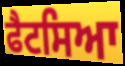
ਫੈਟਸਿਆ